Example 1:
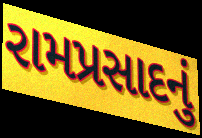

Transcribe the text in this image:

રામપ્રસાદનું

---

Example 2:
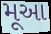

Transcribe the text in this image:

મૂઆ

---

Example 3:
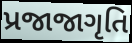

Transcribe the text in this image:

પ્રજાજાગૃતિ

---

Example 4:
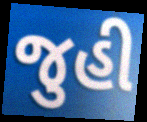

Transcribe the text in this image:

જુહી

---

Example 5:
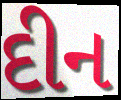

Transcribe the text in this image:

દીન